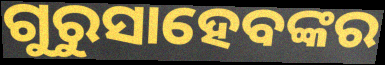
ଗୁରୁସାହେବଙ୍କର